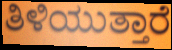
ತಿಳಿಯುತ್ತಾರೆ